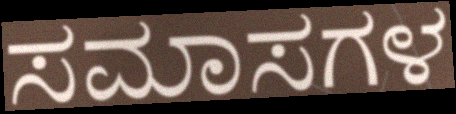
ಸಮಾಸಗಳ